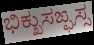
ಭಿಕ್ಖುಸಙ್ಘಸ್ಸ